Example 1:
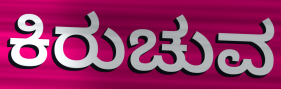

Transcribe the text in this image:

ಕಿರುಚುವ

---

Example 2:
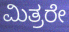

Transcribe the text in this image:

ಮಿತ್ರರೇ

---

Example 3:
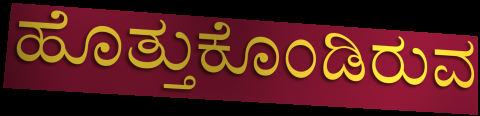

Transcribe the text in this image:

ಹೊತ್ತುಕೊಂಡಿರುವ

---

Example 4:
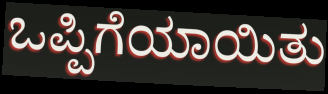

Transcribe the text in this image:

ಒಪ್ಪಿಗೆಯಾಯಿತು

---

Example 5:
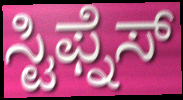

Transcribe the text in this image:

ಸ್ಟಿಫ್ನೆಸ್